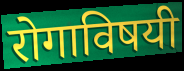
रोगाविषयी